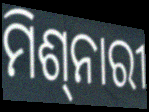
ମିଶ୍‍ନାରୀ